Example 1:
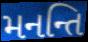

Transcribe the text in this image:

મનન્તિ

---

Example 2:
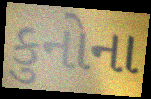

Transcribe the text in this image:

કુનોના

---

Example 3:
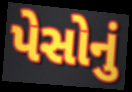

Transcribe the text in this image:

પેસોનું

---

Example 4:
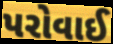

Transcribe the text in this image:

પરોવાઈ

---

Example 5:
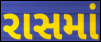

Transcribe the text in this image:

રાસમાં